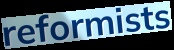
reformists